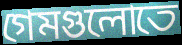
গেমগুলোতে